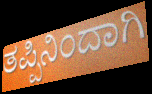
ತಪ್ಪಿನಿಂದಾಗಿ